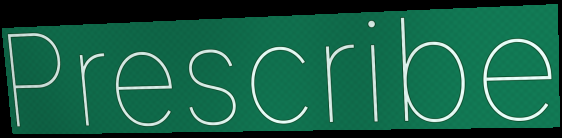
Prescribe